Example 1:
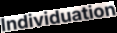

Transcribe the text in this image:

Individuation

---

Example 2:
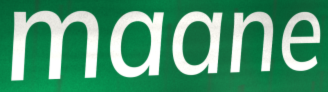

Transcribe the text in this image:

maane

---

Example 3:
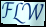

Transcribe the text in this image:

FLW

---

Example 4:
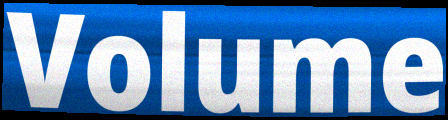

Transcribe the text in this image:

Volume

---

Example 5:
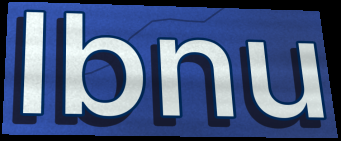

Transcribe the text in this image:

Ibnu